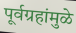
पूर्वग्रहांमुळे